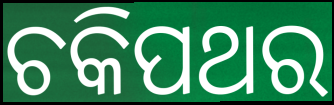
ଚକିପଥର